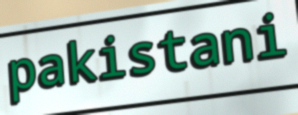
pakistani